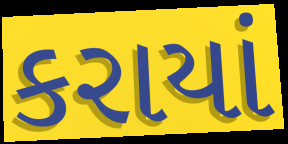
કરાયાં